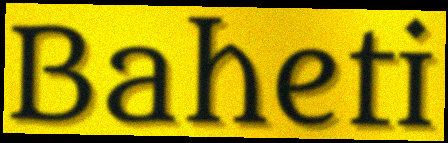
Baheti